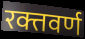
रक्तवर्ण